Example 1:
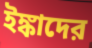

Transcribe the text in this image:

ইঙ্কাদের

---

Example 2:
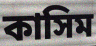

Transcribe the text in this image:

কাসিম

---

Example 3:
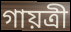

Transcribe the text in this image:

গায়ত্রী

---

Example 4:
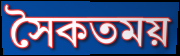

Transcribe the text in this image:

সৈকতময়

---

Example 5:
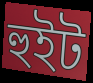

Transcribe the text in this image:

হুইট